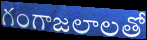
గంగాజలాలతో